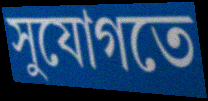
সুযোগতে